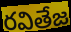
రవితేజ